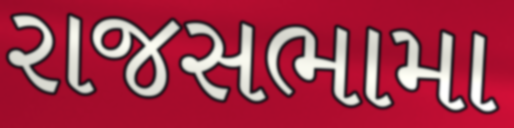
રાજસભામા